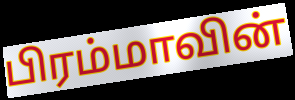
பிரம்மாவின்